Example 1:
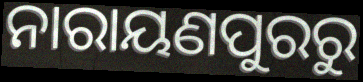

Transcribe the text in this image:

ନାରାୟଣପୁରରୁ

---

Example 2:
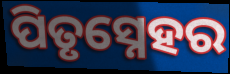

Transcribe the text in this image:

ପିତୃସ୍ନେହର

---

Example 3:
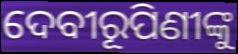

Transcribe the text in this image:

ଦେବୀରୂପିଣୀଙ୍କୁ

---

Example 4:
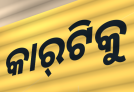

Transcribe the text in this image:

କାର୍‍ଟିକୁ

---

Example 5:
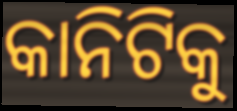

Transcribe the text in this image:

କାନିଟିକୁ